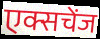
एक्सचेंज